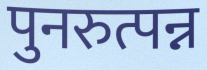
पुनरुत्पन्न